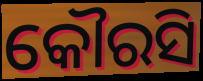
କୌରସି